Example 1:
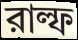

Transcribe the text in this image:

রাল্ফ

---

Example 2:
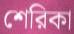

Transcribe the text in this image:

শেরিকা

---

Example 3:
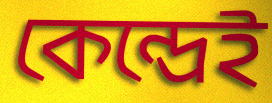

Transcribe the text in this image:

কেন্দ্রেই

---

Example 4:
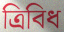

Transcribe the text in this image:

ত্রিবিধ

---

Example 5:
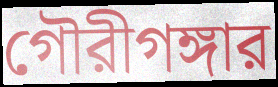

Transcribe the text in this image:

গৌরীগঙ্গার